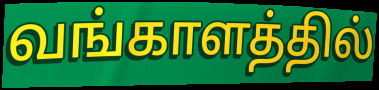
வங்காளத்தில்